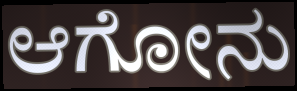
ಆಗೋನು